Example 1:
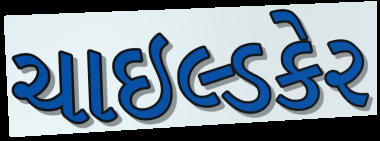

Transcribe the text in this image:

ચાઇલ્ડકેર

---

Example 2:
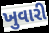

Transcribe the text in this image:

ખુવારી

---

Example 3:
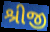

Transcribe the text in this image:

શ્રીજી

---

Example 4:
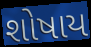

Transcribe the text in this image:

શોષાય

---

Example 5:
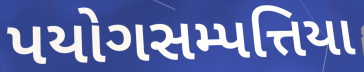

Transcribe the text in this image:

પયોગસમ્પત્તિયા